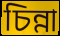
চিন্না